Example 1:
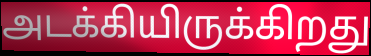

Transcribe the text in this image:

அடக்கியிருக்கிறது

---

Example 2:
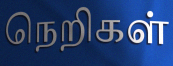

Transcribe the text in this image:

நெறிகள்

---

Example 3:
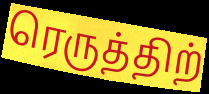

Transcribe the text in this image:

ரெருத்திற்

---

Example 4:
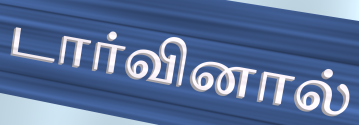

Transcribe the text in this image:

டார்வினால்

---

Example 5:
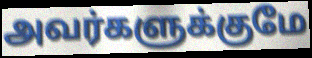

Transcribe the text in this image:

அவர்களுக்குமே